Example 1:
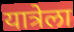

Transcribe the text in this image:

यात्रेला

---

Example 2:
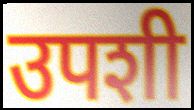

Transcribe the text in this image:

उपशी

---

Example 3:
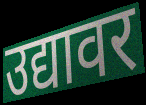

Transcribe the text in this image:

उद्यावर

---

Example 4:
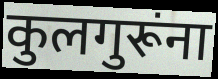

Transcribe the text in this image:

कुलगुरूंना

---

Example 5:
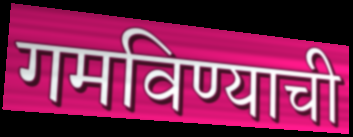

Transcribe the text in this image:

गमविण्याची